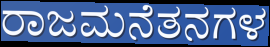
ರಾಜಮನೆತನಗಳ